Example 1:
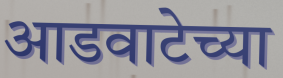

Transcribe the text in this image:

आडवाटेच्या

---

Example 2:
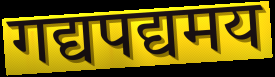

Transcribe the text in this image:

गद्यपद्यमय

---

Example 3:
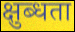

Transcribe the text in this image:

क्षुब्धता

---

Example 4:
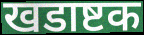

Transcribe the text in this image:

खडाष्टक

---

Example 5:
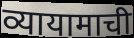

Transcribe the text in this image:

व्यायामाची